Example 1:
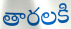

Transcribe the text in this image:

తారలకి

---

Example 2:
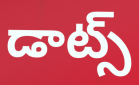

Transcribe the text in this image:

డాట్స్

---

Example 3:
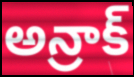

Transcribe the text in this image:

అన్రాక్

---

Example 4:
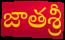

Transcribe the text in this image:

జాతశ్రీ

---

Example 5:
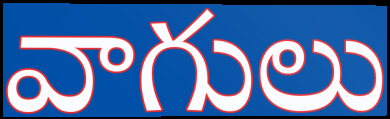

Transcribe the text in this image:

వాగులు